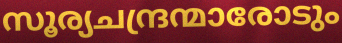
സൂര്യചന്ദ്രന്മാരോടും